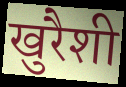
खुरैशी